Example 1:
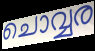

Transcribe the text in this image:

ചൊവ്വര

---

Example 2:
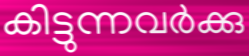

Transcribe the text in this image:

കിട്ടുന്നവർക്കു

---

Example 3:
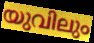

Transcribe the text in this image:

യുവിലും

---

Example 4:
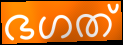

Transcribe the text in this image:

ഭഗത്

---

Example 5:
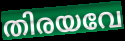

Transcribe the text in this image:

തിരയവേ